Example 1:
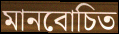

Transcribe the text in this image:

মানবোচিত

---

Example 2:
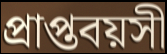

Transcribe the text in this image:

প্রাপ্তবয়সী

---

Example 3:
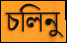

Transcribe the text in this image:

চলিনু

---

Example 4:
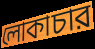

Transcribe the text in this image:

লোকাচার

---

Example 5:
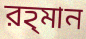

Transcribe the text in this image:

রহ্‌মান